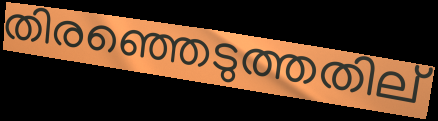
തിരഞ്ഞെടുത്തതില്